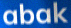
abak